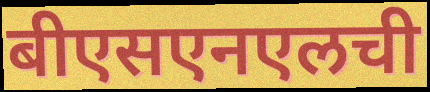
बीएसएनएलची